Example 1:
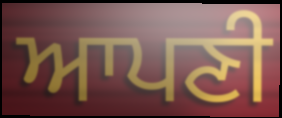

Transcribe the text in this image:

ਆਪਣੀ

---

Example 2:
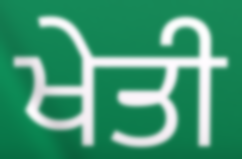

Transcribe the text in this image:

ਖੇਤੀ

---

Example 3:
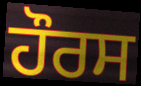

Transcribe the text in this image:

ਹੌਰਸ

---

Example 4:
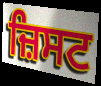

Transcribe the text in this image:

ਜ਼ਿਸਟ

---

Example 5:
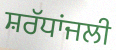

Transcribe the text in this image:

ਸ਼ਰੱਧਾਂਜਲੀ